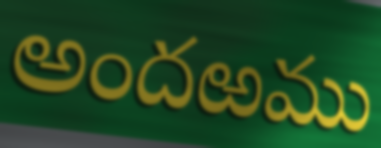
అందఱము